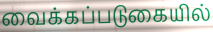
வைக்கப்படுகையில்